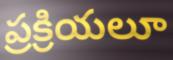
ప్రక్రియలూ